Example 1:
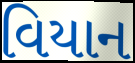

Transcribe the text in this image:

વિયાન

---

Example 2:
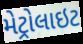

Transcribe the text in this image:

મેટ્રોલાઇટ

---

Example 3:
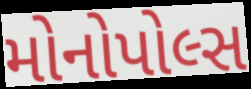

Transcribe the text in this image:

મોનોપોલ્સ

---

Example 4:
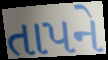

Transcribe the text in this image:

તાપને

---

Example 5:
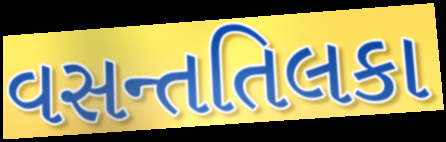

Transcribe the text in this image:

વસન્તતિલકા